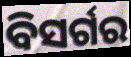
ବିସର୍ଗର